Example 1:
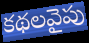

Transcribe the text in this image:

కథలవైపు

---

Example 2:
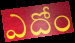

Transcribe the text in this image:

ఎదోం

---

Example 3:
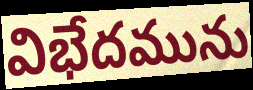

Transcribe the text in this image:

విభేదమును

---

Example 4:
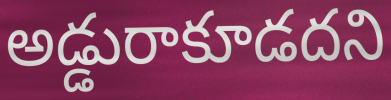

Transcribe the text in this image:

అడ్డురాకూడదని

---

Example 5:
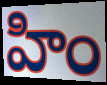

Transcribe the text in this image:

హిం